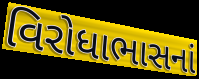
વિરોધાભાસનાં